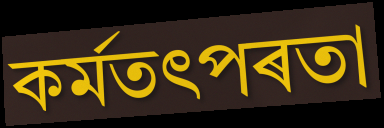
কৰ্মতৎপৰতা